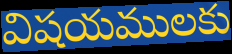
విషయములకు